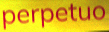
perpetuo